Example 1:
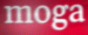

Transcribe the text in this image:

moga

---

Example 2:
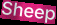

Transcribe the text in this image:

Sheep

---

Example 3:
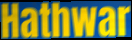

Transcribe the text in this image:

Hathwar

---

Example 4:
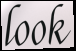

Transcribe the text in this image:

look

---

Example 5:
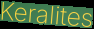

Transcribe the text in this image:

Keralites